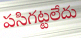
పసిగట్టలేదు